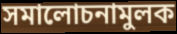
সমালোচনামুলক